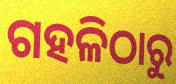
ଗହଳିଠାରୁ